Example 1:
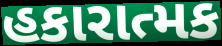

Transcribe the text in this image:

હકારાત્મક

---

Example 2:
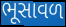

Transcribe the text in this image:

ભૂસાવળ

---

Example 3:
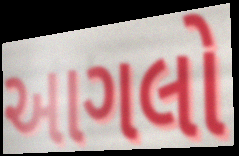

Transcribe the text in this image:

આગલો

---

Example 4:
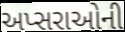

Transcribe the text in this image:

અપ્સરાઓની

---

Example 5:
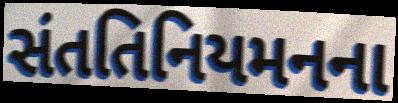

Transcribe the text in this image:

સંતતિનિયમનના